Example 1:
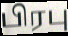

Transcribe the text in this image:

பிரபு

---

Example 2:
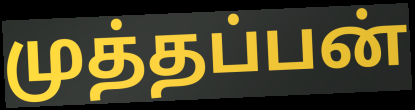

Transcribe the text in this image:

முத்தப்பன்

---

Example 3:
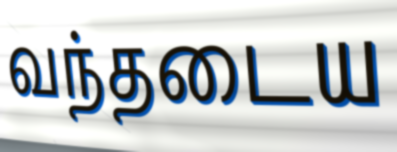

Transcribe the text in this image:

வந்தடைய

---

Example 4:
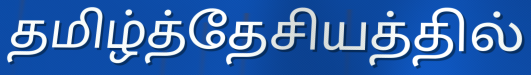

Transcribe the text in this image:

தமிழ்த்தேசியத்தில்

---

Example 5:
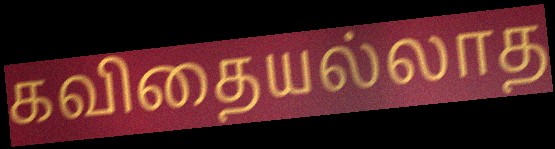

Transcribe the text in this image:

கவிதையல்லாத